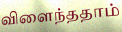
விளைந்ததாம்